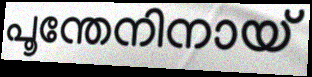
പൂന്തേനിനായ്